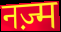
नज़्म